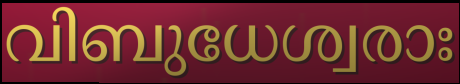
വിബുധേശ്വരാഃ